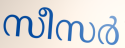
സീസർ